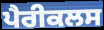
ਪੈਰੀਕਲਸ